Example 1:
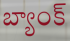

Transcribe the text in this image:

బ్యాంక్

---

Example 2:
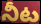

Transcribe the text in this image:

నీట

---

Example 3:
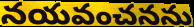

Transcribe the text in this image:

నయవంచనను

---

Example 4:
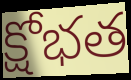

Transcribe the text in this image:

క్షోభత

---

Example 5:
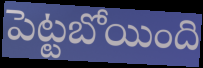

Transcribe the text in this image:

పెట్టబోయింది